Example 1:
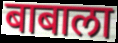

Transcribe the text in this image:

बाबाला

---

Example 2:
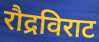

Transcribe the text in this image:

रौद्रविराट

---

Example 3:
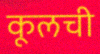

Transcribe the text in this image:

कूलची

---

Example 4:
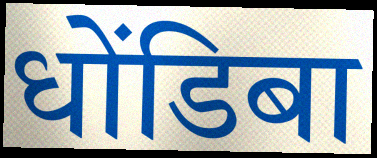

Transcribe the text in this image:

धोंडिबा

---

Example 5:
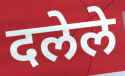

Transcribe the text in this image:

दलेले